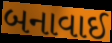
બનાવાઈ